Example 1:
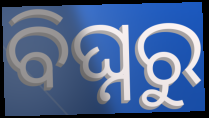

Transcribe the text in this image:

ବିଘ୍ନରୁ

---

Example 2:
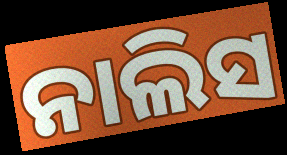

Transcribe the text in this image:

ନାଲିସ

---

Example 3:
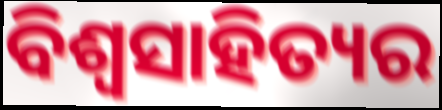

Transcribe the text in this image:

ବିଶ୍ୱସାହିତ୍ୟର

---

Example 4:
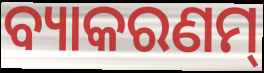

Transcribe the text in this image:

ବ୍ୟାକରଣମ୍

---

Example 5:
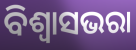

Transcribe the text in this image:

ବିଶ୍ୱାସଭରା